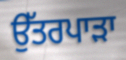
ਉੱਤਰਪਾੜਾ